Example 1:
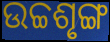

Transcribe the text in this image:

ଉଚ୍ଚଶୃଙ୍ଗ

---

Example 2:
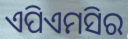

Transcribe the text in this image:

ଏପିଏମସିର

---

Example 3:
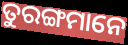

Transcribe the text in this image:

ତୁରଙ୍ଗମାନେ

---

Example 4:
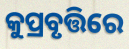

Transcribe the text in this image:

କୁପ୍ରବୃତ୍ତିରେ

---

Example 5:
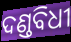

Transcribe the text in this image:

ଦଣ୍ଡବିଧୀ